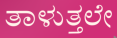
ತಾಳುತ್ತಲೇ